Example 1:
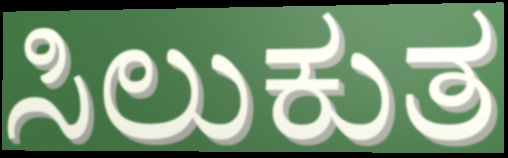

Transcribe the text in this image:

ಸಿಲುಕುತ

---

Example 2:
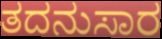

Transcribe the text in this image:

ತದನುಸಾರ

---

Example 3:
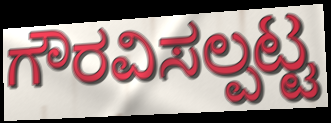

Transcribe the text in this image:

ಗೌರವಿಸಲ್ಪಟ್ಟ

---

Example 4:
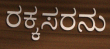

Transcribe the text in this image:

ರಕ್ಕಸರನು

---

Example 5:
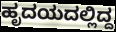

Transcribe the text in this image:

ಹೃದಯದಲ್ಲಿದ್ದ